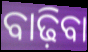
ବାଢ଼ିବା